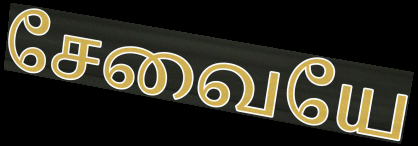
சேவையே